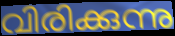
വിരിക്കുന്നു